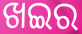
ଖଇର